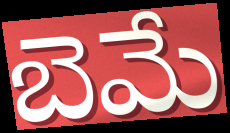
బెమే